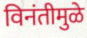
विनंतीमुळे